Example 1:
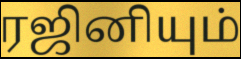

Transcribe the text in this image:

ரஜினியும்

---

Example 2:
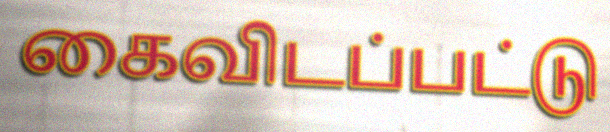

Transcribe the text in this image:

கைவிடப்பட்டு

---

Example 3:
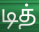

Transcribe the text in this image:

டித்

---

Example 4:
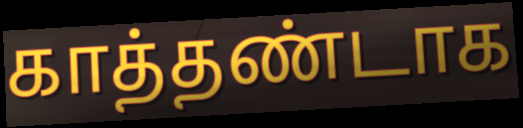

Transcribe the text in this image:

காத்தண்டாக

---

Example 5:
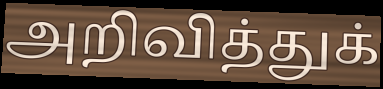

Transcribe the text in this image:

அறிவித்துக்